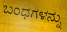
ಬಂಧಗಳನ್ನು